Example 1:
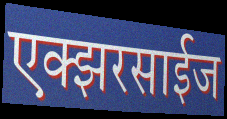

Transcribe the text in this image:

एक्झरसाईज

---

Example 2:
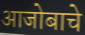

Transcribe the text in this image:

आजोबाचे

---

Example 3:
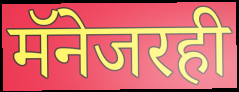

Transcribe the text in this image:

मॅनेजरही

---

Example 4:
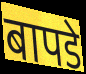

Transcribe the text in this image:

बापडे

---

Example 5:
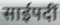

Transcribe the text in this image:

साईपदीं